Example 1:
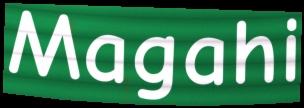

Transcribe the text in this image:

Magahi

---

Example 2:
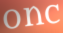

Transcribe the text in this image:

onc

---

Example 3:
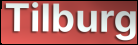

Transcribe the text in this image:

Tilburg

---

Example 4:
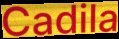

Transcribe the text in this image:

Cadila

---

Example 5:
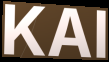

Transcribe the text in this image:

KAI